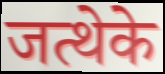
जत्थेके